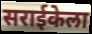
सराईकेला